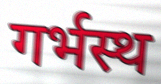
गर्भस्‍थ